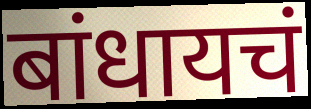
बांधायचं